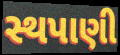
સ્થપાણી